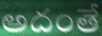
అదంతే